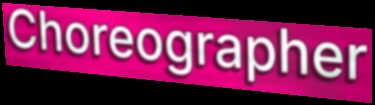
Choreographer